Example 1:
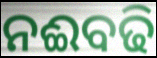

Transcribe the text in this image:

ନଈବଢି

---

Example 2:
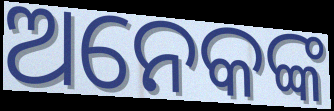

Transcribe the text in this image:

ଅନେକଙ୍କ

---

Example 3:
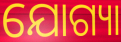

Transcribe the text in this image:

ଯୋଗ୍ୟା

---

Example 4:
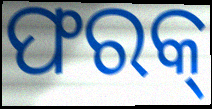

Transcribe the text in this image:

ଫରକ୍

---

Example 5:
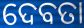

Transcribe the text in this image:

ଦେବତା